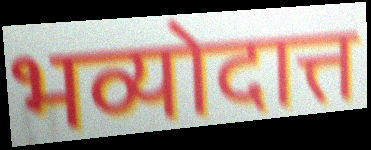
भव्योदात्त